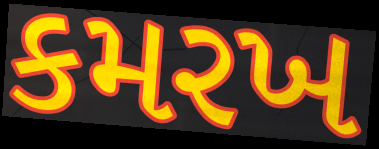
કમરખ